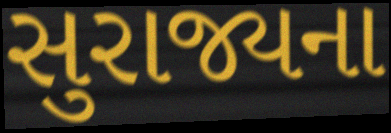
સુરાજ્યના